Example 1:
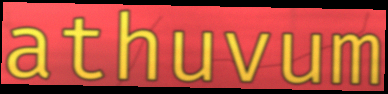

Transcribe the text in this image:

athuvum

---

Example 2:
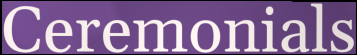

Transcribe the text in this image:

Ceremonials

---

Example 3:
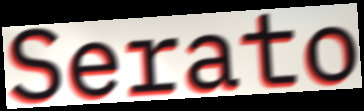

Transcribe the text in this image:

Serato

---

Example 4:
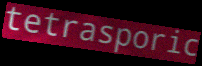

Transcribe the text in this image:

tetrasporic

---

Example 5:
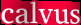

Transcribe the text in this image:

calvus